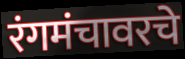
रंगमंचावरचे